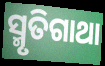
ସ୍ମୃତିଗାଥା